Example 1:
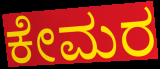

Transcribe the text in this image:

ಕೇಮರ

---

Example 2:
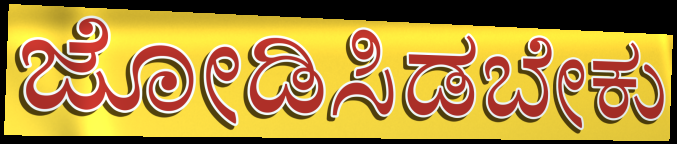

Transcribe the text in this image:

ಜೋಡಿಸಿಡಬೇಕು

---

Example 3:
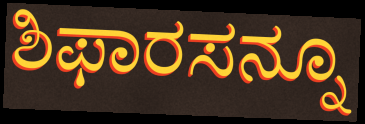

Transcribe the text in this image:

ಶಿಫಾರಸನ್ನೂ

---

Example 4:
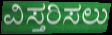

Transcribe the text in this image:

ವಿಸ್ತರಿಸಲು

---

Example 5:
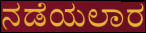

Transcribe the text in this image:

ನಡೆಯಲಾರ